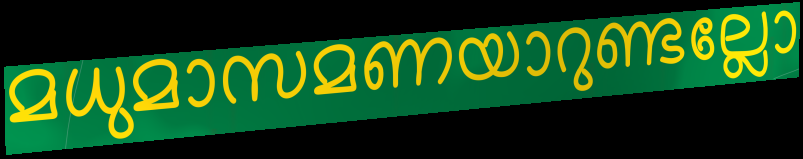
മധുമാസമണയാറുണ്ടല്ലോ